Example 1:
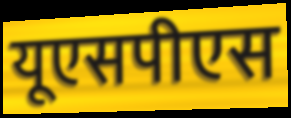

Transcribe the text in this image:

यूएसपीएस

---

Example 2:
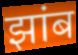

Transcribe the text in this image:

झांब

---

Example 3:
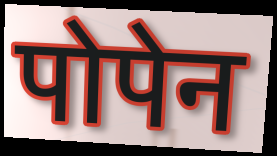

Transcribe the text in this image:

पोपेन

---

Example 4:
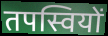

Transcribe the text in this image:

तपस्वियों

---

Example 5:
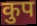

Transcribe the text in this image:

कुप